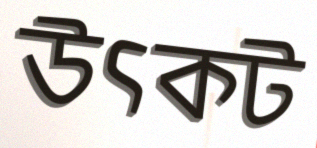
উৎকট